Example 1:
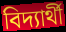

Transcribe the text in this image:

বিদ্যাৰ্থী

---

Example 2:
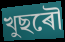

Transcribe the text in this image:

খুছৰৌ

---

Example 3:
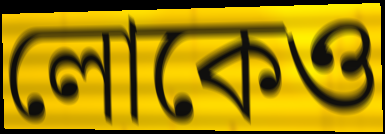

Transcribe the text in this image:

লোকেও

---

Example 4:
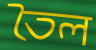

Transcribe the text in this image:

তৈল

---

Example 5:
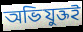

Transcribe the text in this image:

অভিযুক্তই